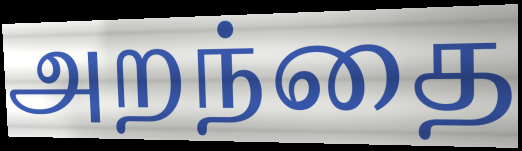
அறந்தை